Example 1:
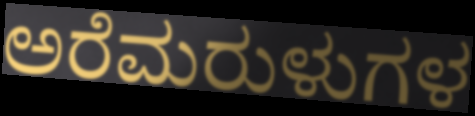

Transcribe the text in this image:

ಅರೆಮರುಳುಗಳ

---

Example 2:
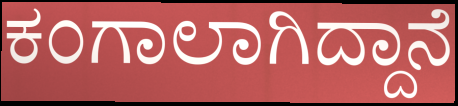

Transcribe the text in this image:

ಕಂಗಾಲಾಗಿದ್ದಾನೆ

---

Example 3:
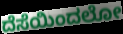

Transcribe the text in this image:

ದೆಸೆಯಿಂದಲೋ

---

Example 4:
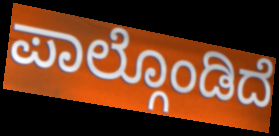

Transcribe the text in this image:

ಪಾಲ್ಗೊಂಡಿದೆ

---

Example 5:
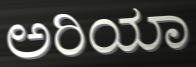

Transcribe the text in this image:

ಅರಿಯಾ